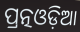
ପ୍ରତ୍ନଓଡ଼ିଆ